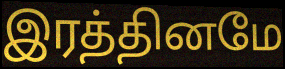
இரத்தினமே